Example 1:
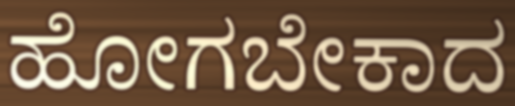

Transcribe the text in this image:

ಹೋಗಬೇಕಾದ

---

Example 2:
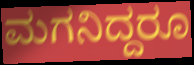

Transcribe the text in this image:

ಮಗನಿದ್ದರೂ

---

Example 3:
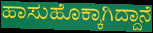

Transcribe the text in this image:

ಹಾಸುಹೊಕ್ಕಾಗಿದ್ದಾನೆ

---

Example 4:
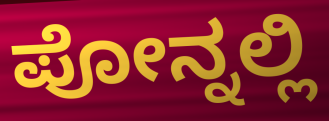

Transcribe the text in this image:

ಪೋನ್ನಲ್ಲಿ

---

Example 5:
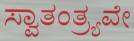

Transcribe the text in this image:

ಸ್ವಾತಂತ್ರ್ಯವೇ